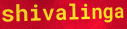
shivalinga